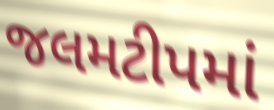
જલમટીપમાં